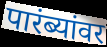
पारंब्यांवर